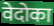
वेदोका